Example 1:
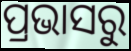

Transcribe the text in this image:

ପ୍ରଭାସରୁ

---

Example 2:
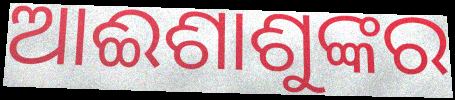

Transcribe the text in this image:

ଆଈଶାଶୁଙ୍କର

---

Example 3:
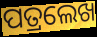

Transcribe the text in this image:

ପତ୍ରଲେଖ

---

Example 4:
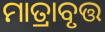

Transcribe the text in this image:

ମାତ୍ରାବୃତ୍ତ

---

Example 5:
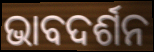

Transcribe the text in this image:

ଭାବଦର୍ଶନ